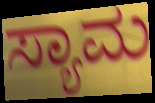
ಸ್ಯಾಮ